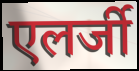
एलर्जी